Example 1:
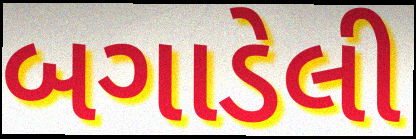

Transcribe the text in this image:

બગાડેલી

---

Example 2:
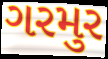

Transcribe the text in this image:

ગરમુર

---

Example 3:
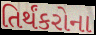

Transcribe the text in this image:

તિર્થંકરોના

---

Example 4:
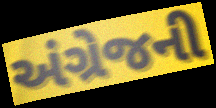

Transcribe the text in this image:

અંગ્રેજની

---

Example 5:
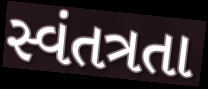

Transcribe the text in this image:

સ્વંતત્રતા